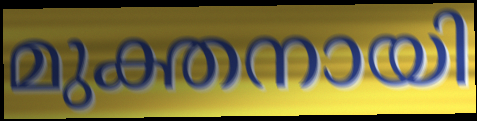
മുക്തനായി